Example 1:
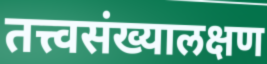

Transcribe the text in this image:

तत्त्वसंख्यालक्षण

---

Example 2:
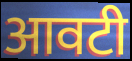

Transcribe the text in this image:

आवटी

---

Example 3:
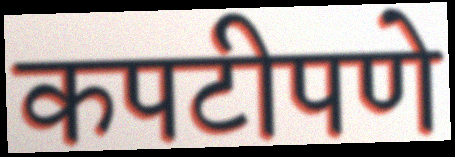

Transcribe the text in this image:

कपटीपणे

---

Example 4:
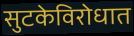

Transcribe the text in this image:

सुटकेविरोधात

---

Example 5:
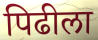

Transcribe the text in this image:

पिढीला